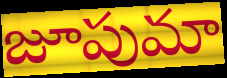
జూపుమా